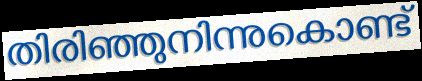
തിരിഞ്ഞുനിന്നുകൊണ്ട്